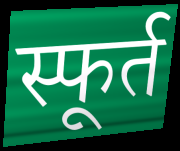
स्फूर्त